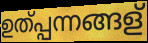
ഉത്പ്പന്നങ്ങള്